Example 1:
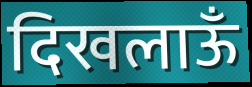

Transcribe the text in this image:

दिखलाऊँ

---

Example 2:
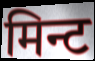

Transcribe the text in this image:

मिन्ट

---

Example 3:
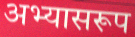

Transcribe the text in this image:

अभ्यासरूप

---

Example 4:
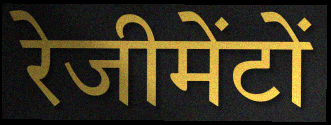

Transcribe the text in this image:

रेजीमेंटों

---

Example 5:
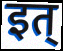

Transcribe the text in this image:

इत्